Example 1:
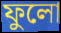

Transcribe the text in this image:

ফুলো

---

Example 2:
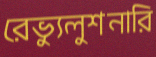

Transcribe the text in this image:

রেভ্যুলুশনারি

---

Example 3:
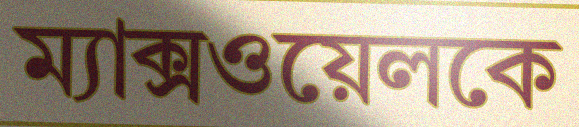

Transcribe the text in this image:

ম্যাক্সওয়েলকে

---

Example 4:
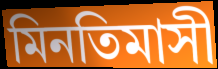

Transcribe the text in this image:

মিনতিমাসী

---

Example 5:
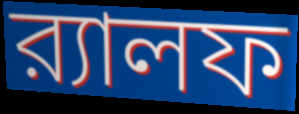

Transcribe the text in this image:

র‍্যালফ